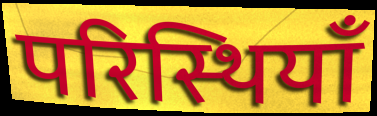
परिस्थियाँ